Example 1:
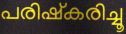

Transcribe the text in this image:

പരിഷ്കരിച്ചൂ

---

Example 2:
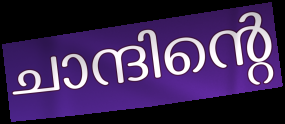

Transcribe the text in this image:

ചാന്ദിന്റെ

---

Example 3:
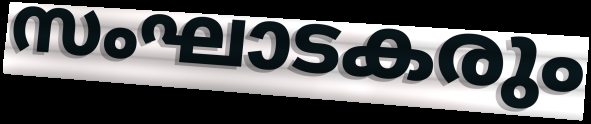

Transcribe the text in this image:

സംഘാടകരും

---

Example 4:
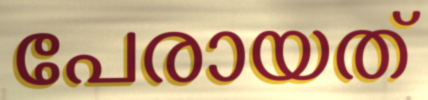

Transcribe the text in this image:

പേരായത്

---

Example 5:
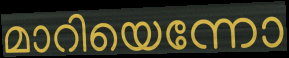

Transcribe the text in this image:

മാറിയെന്നോ